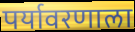
पर्यावरणाला